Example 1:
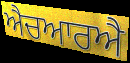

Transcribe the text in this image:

ਐਚਆਰਐ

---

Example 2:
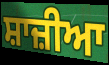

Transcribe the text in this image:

ਸ਼ਾਜ਼ੀਆ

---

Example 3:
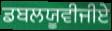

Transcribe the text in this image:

ਡਬਲਯੂਵੀਜੀਏ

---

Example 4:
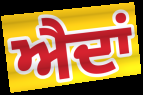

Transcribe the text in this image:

ਐਦਾਂ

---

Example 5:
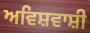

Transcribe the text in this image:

ਅਵਿਸ਼ਵਾਸ਼ੀ